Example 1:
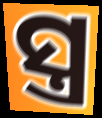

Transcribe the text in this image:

ସ୍ତ୍ର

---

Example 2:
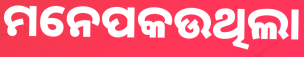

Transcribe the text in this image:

ମନେପକଉଥିଲା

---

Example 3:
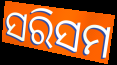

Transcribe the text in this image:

ସରିସମ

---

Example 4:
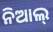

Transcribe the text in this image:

ନିଆଲ୍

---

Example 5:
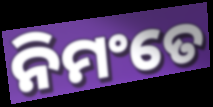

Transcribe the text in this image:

ନିମଂତେ